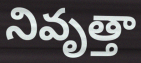
నివృత్తా